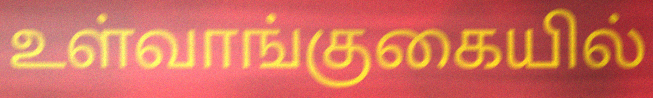
உள்வாங்குகையில்